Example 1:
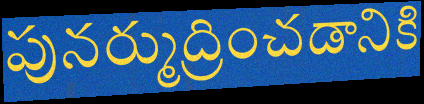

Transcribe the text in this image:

పునర్ముద్రించడానికి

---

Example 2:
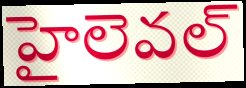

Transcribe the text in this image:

హైలెవల్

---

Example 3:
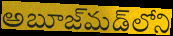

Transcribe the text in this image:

అబూజ్‌మడ్‌లోని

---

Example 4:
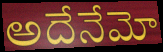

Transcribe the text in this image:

అదేనేమో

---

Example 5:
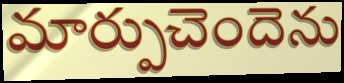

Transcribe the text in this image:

మార్పుచెందెను